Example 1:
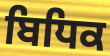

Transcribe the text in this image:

ਬਿਧਿਕ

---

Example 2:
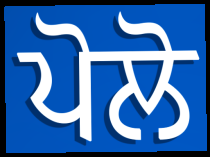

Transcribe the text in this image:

ਪੋਲੋ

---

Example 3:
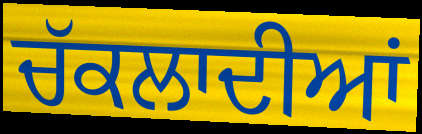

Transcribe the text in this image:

ਚੱਕਲਾਦੀਆਂ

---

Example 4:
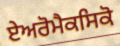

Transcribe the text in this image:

ਏਅਰੋਮੈਕਸਿਕੋ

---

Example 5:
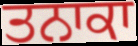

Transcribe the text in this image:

ਤਨਾਕਾ